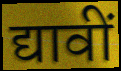
द्यावीं